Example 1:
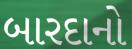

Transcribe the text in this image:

બારદાનો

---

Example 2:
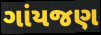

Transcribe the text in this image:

ગાંયજણ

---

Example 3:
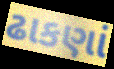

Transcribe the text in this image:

ઢાકણાં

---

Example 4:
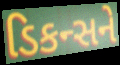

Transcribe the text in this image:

ડિકન્સને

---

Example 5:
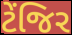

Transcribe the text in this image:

ટેંજિર